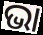
ଭା